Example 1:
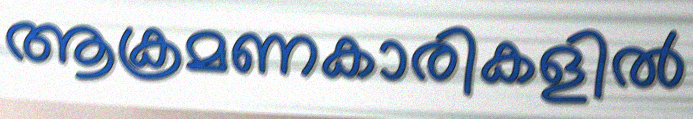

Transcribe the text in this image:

ആക്രമണകാരികളിൽ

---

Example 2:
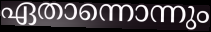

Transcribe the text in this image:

ഏതാന്നൊന്നും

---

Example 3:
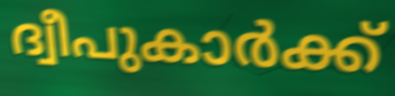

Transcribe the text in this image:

ദ്വീപുകാർക്ക്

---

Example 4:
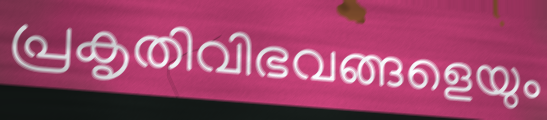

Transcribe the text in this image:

പ്രകൃതിവിഭവങ്ങളെയും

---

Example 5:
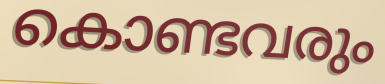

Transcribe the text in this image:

കൊണ്ടവരും